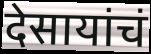
देसायांचं